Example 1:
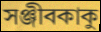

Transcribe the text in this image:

সঞ্জীবকাকু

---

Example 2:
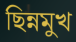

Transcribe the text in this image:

ছিন্নমুখ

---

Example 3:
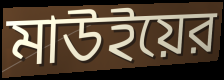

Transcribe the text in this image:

মাউইয়ের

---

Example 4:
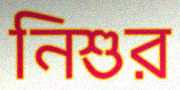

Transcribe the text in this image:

নিশুর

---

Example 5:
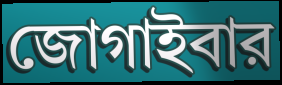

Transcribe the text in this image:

জোগাইবার